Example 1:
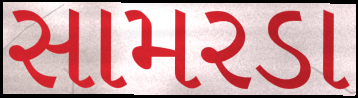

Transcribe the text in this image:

સામરડા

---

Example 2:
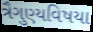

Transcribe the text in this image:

ત્રૈગુણ્યવિષયા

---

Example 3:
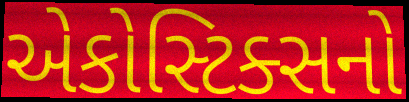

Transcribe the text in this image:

એકોસ્ટિક્સનો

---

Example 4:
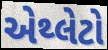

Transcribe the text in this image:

એથ્લેટો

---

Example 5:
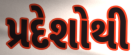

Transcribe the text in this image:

પ્રદેશોથી